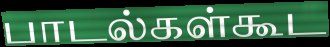
பாடல்கள்கூட